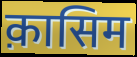
क़ासिम